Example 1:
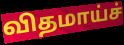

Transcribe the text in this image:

விதமாய்ச்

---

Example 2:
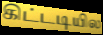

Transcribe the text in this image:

கிட்டடியில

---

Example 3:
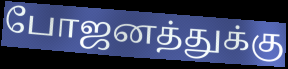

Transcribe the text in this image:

போஜனத்துக்கு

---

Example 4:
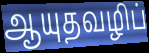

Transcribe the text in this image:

ஆயுதவழிப்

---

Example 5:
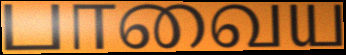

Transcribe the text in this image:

பாவைய